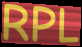
RPL